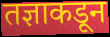
तज्ञाकडून